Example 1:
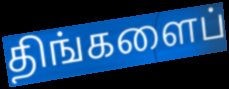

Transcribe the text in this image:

திங்களைப்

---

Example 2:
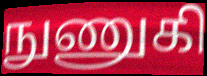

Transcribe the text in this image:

நுணுகி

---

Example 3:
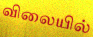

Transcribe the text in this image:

விலையில்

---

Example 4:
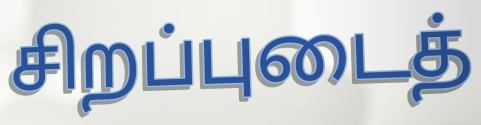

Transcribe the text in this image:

சிறப்புடைத்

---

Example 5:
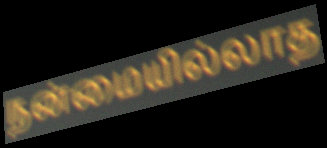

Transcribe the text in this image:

நன்மையில்லாத